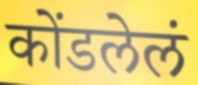
कोंडलेलं